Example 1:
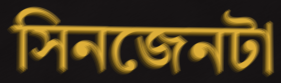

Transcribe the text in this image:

সিনজেনটা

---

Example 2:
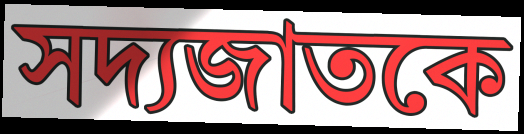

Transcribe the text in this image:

সদ্যজাতকে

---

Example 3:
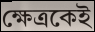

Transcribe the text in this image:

ক্ষেত্রকেই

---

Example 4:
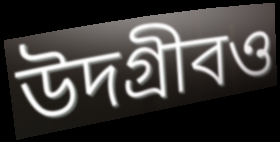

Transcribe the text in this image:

উদগ্রীবও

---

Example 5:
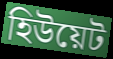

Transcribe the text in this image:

হিউয়েট